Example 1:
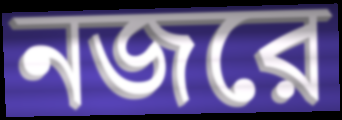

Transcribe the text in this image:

নজরে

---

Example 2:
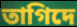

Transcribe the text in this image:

তাগিদে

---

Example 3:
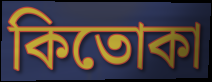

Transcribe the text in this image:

কিতোকা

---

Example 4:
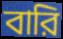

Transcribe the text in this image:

বারি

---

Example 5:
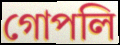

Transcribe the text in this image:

গোপলি